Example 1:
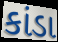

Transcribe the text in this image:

કાંડા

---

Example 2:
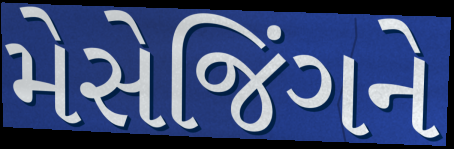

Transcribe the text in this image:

મેસેજિંગને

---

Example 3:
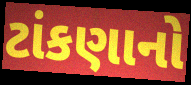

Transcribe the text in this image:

ટાંકણાનો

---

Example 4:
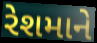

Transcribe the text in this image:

રેશમાને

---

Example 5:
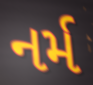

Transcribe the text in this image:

નર્મ